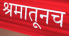
श्रमातूनच